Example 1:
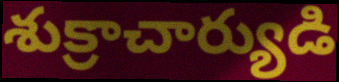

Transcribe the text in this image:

శుక్రాచార్యుడి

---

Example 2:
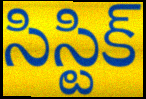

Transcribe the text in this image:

సిస్టిక్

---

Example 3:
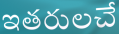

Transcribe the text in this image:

ఇతరులచే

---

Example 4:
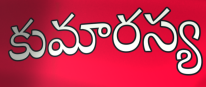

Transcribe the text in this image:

కుమారస్య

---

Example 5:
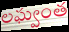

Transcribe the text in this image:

లఘ్వంత